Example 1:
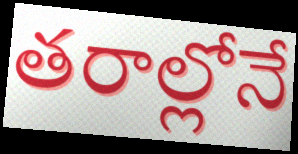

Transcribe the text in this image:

తరాల్లోనే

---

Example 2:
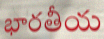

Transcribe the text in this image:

భారతీయ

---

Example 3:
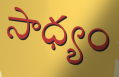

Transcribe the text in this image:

సాధ్యం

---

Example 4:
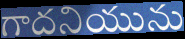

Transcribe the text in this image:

గాదనియును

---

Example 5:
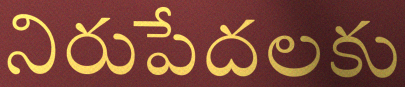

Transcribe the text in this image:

నిరుపేదలకు